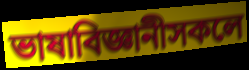
ভাষাবিজ্ঞানীসকলে